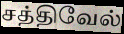
சத்திவேல்